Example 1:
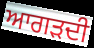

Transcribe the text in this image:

ਆਗੜਦੀ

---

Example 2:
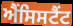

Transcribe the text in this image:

ਐਂਸਿਸਟੈਂਟ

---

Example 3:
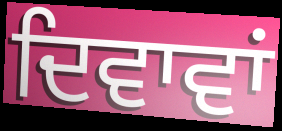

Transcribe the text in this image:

ਦਿਵਾਵਾਂ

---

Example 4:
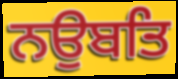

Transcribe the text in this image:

ਨਉਬਤਿ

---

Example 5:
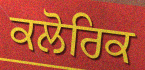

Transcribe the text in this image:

ਕਲੋਰਿਕ